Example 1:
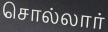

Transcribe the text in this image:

சொல்லார்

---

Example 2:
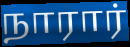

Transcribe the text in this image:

நாரார்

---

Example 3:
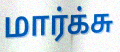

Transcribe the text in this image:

மார்க்சு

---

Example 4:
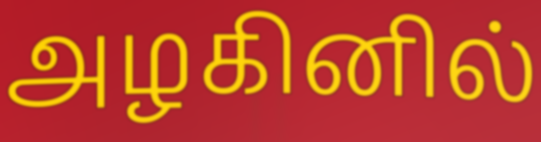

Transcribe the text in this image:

அழகினில்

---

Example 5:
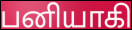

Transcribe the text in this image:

பனியாகி